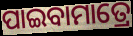
ପାଇବାମାତ୍ରେ